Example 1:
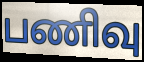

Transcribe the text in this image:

பணிவு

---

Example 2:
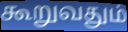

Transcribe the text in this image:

கூறுவதும்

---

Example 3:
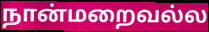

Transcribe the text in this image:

நான்மறைவல்ல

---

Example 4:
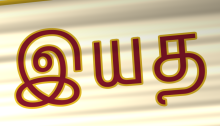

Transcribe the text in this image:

இயத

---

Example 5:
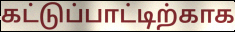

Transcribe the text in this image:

கட்டுப்பாட்டிற்காக